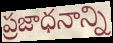
ప్రజాధనాన్ని